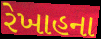
રેખાહના